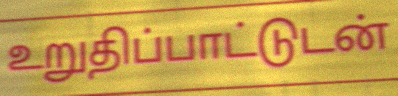
உறுதிப்பாட்டுடன்